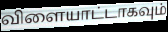
விளையாட்டாகவும்